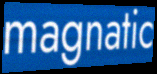
magnatic